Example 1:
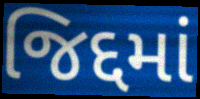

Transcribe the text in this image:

જિદ્દમાં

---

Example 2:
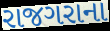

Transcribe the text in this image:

રાજગરાના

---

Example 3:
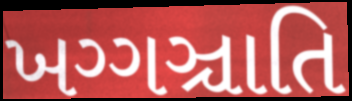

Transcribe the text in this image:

ખગ્ગઞ્ચાતિ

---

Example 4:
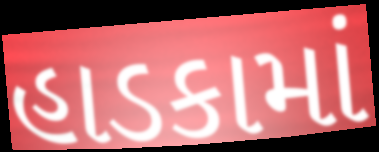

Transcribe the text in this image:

હાડકામાં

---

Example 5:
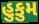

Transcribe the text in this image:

હુકુમ